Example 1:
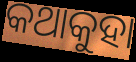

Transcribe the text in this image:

କଥାକୁହା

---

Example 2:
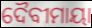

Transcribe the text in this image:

ଦୈବୀମାୟା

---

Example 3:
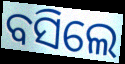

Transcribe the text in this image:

ବସିଲେ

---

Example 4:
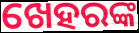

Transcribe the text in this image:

ଖେହରଙ୍କ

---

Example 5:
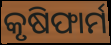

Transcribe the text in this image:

କୃଷିଫାର୍ମ